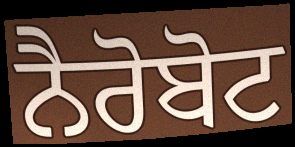
ਨੈਰੋਬੋਟ